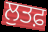
ਲੁਤਫ਼